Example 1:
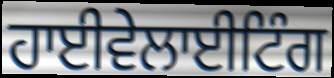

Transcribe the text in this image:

ਹਾਈਵੇਲਾਈਟਿੰਗ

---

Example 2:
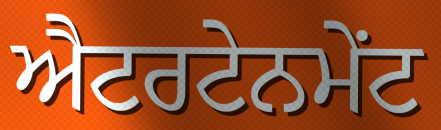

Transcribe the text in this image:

ਐਟਰਟੇਨਮੇਂਟ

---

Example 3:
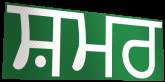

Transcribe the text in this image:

ਸ਼ਮਰ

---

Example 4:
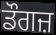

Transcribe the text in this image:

ਡੌਗਜ਼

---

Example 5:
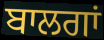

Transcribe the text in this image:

ਬਾਲਗਾਂ